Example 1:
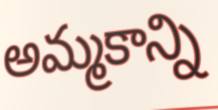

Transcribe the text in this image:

అమ్మకాన్ని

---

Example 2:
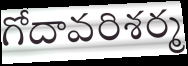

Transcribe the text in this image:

గోదావరిశర్మ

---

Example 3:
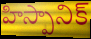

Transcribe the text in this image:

హిస్పానిక్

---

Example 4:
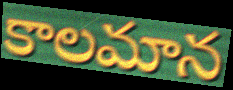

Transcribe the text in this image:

కాలమాన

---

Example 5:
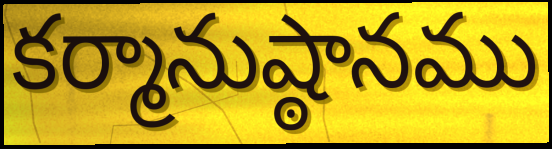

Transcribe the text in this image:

కర్మానుష్ఠానము